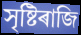
সৃষ্টিৰাজি